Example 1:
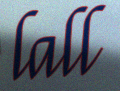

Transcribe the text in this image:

lall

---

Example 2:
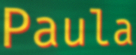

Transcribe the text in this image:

Paula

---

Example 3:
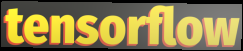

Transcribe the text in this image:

tensorflow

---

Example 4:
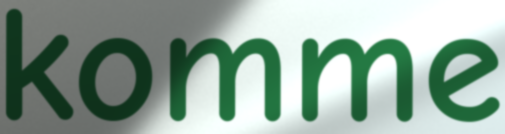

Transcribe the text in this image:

komme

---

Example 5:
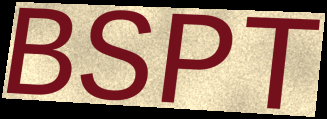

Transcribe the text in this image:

BSPT